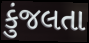
કુંજલતા